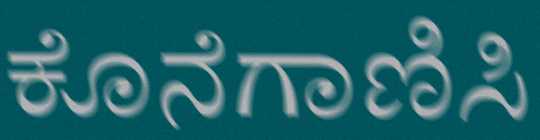
ಕೊನೆಗಾಣಿಸಿ